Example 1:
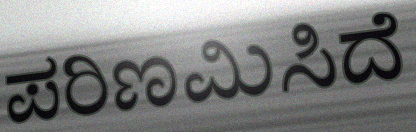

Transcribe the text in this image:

ಪರಿಣಮಿಸಿದೆ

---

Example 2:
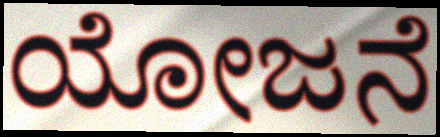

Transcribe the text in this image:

ಯೋಜನೆ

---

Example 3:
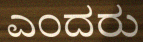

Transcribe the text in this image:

ಎಂದರು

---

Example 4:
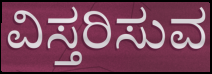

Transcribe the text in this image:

ವಿಸ್ತರಿಸುವ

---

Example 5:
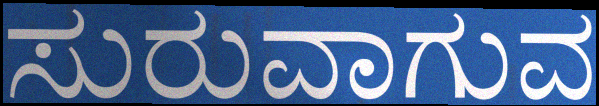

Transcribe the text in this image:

ಸುರುವಾಗುವ